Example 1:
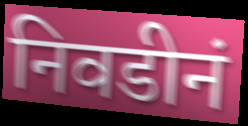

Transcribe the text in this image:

निवडीनं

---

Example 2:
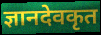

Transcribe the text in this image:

ज्ञानदेवकृत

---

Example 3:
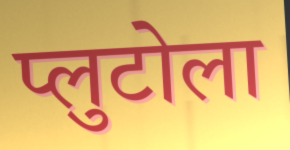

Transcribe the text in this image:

प्लुटोला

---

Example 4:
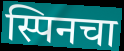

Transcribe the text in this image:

स्पिनचा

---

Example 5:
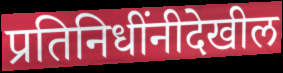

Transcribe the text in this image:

प्रतिनिधींनीदेखील